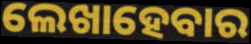
ଲେଖାହେବାର